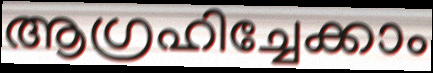
ആഗ്രഹിച്ചേക്കാം